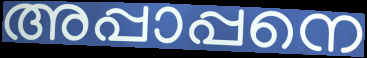
അപ്പാപ്പനെ